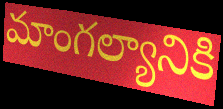
మాంగల్యానికి